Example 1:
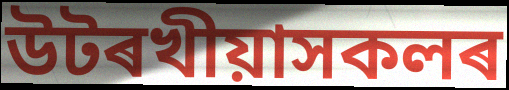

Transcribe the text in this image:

উটৰখীয়াসকলৰ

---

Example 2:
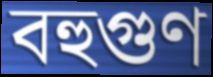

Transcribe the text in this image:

বহুগুণ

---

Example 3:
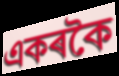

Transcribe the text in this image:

একৰকৈ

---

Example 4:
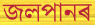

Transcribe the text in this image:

জলপানৰ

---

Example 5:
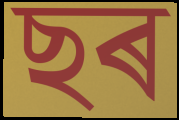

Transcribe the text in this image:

ছৰ